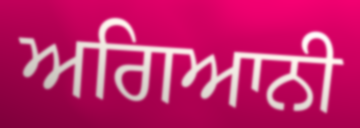
ਅਗਿਆਨੀ